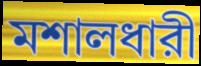
মশালধারী